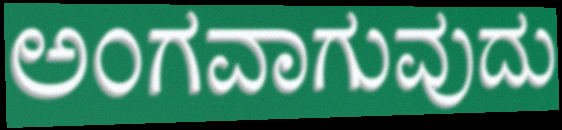
ಅಂಗವಾಗುವುದು